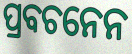
ପ୍ରବଚନେନ